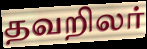
தவறிலர்